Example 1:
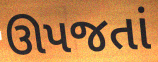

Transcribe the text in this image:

ઊપજતાં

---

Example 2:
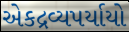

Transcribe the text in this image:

એકદ્રવ્યપર્યાયો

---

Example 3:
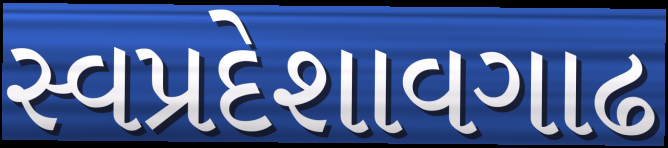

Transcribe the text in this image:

સ્વપ્રદેશાવગાઢ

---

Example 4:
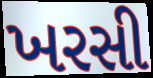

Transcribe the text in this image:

ખરસી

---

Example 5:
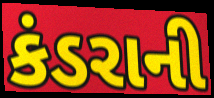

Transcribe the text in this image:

કંડરાની